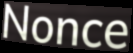
Nonce